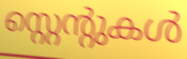
സ്റ്റെന്റുകൾ